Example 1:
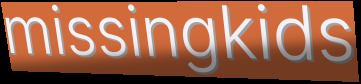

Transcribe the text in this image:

missingkids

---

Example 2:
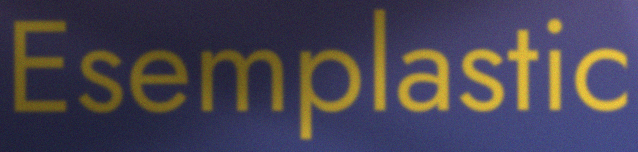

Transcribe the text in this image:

Esemplastic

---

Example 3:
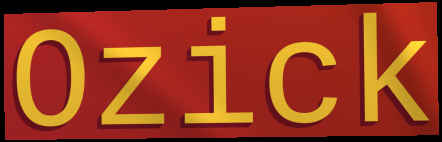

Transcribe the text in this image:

Ozick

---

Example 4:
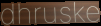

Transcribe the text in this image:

dhruske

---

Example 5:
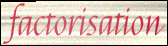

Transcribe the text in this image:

factorisation